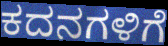
ಕದನಗಳಿಗೆ